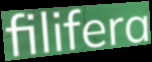
filifera